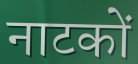
नाटकों